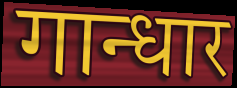
गान्धार